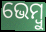
ଭେମ୍ବୁ